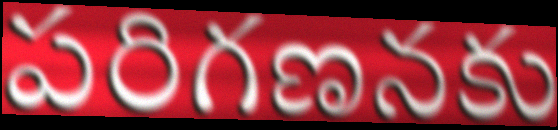
పరిగణనకు